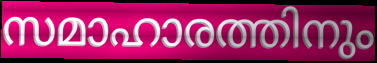
സമാഹാരത്തിനും